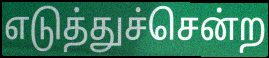
எடுத்துச்சென்ற